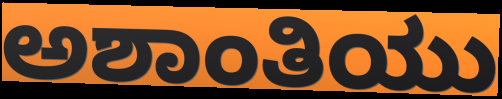
ಅಶಾಂತಿಯು